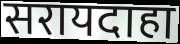
सरायदाहा